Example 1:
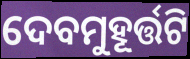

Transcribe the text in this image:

ଦେବମୁହୂର୍ତ୍ତଟି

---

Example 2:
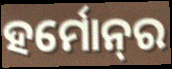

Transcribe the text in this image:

ହର୍ମୋନ୍‌ର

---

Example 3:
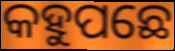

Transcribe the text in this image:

କହୁପଛେ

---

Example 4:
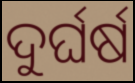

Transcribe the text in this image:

ଦୁର୍ଘର୍ଷ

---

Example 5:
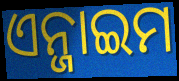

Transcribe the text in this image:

ଏନ୍ଜାଇମ